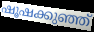
ഷൂഷക്കുഞ്ഞ്